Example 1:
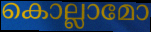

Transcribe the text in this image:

കൊല്ലാമോ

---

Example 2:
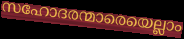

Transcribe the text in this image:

സഹോദരന്മാരെയെല്ലാം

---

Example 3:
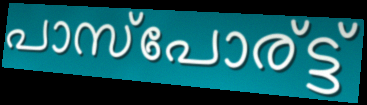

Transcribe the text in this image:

പാസ്പോര്ട്ട്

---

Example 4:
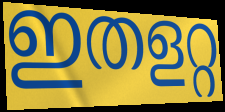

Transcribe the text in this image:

ഇതളറ്റ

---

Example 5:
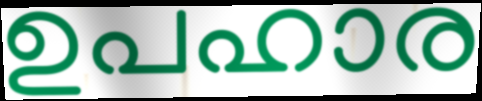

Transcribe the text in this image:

ഉപഹാര